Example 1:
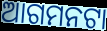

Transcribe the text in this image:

ଆଗମନଟା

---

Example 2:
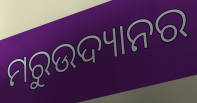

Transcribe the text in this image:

ମରୁଉଦ୍ୟାନର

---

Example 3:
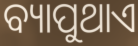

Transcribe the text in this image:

ବ୍ୟାପୁଥାଏ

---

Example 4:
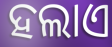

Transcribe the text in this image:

ହଲାଏ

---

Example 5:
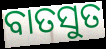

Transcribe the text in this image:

ବାତସୁତ